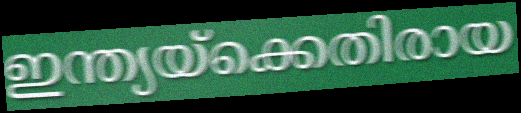
ഇന്ത്യയ്ക്കെതിരായ